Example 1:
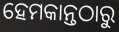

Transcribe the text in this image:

ହେମକାନ୍ତଠାରୁ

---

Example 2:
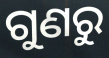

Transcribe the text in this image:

ଗୁଣରୁ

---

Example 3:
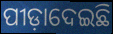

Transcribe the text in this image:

ପୀଡ଼ାଦେଇଛି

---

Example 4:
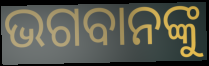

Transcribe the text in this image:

ଭଗବାନଙ୍କୁ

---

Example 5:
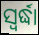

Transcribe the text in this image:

ସ୍ଵର୍ଦ୍ଧା